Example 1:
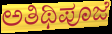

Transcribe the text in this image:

ಅತಿಥಿಪೂಜೆ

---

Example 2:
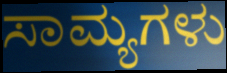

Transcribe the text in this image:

ಸಾಮ್ಯಗಳು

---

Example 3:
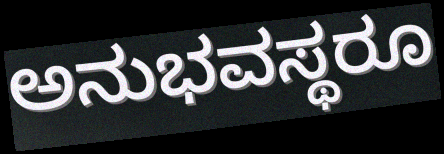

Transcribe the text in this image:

ಅನುಭವಸ್ಥರೂ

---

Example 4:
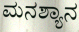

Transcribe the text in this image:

ಮನಶ್ಯಾನ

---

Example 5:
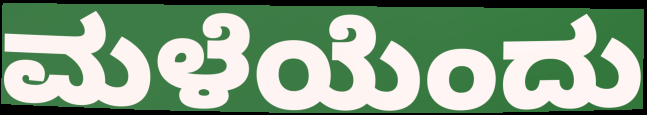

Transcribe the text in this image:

ಮಳೆಯೆಂದು